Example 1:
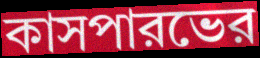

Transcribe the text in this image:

কাসপারভের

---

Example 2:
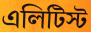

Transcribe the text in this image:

এলিটিস্ট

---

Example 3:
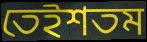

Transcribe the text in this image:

তেইশতম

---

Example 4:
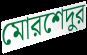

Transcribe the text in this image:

মোরশেদুর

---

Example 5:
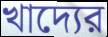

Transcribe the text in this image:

খাদ্যের